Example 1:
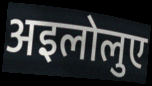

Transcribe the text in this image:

अइलोलुए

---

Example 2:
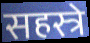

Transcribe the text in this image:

सहस्त्रे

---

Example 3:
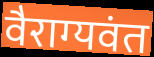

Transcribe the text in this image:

वैराग्यवंत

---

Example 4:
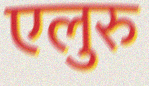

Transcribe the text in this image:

एलुरु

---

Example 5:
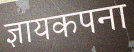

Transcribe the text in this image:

ज्ञायकपना